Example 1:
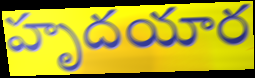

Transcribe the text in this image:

హృదయార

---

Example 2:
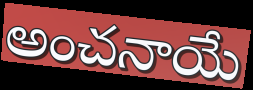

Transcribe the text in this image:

అంచనాయే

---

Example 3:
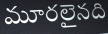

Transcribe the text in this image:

మూరలైనది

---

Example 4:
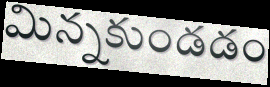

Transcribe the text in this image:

మిన్నకుండడం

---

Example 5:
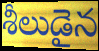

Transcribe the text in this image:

శీలుడైన